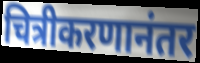
चित्रीकरणानंतर